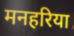
मनहरिया